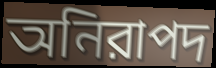
অনিরাপদ